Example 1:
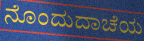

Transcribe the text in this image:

ನೊಂದುದಾಚೆಯ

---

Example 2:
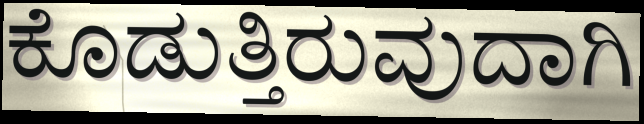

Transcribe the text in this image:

ಕೊಡುತ್ತಿರುವುದಾಗಿ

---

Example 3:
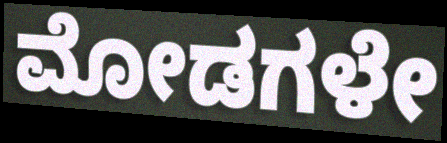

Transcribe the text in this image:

ಮೋಡಗಳೇ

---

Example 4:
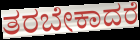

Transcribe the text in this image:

ತರಬೇಕಾದರೆ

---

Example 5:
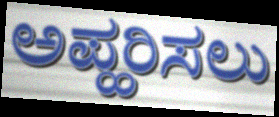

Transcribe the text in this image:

ಅಪ್ಹರಿಸಲು